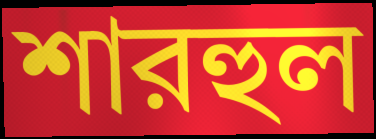
শারহুল